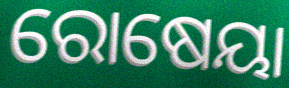
ରୋଷେୟା